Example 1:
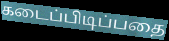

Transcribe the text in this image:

கடைப்பிடிப்பதை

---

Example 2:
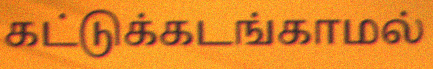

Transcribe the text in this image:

கட்டுக்கடங்காமல்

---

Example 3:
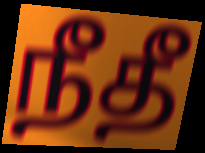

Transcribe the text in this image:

நீதீ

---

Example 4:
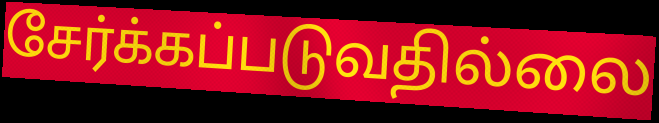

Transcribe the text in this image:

சேர்க்கப்படுவதில்லை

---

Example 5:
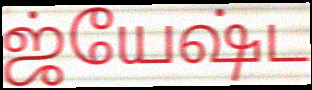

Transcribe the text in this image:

ஜ்யேஷ்ட